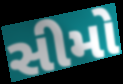
સીમો